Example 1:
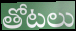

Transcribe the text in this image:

తోటలు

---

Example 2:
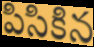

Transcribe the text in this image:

పిసికిన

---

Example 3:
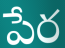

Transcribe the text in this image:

పేర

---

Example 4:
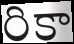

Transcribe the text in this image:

రికా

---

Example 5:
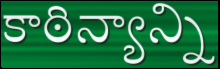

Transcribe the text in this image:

కాఠిన్యాన్ని